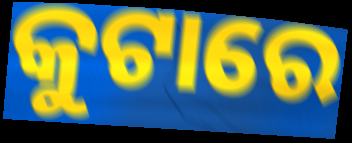
କୁଟାରେ